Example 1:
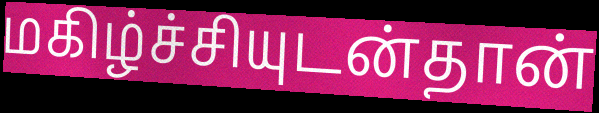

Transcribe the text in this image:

மகிழ்ச்சியுடன்தான்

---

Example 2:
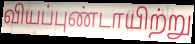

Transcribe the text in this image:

வியப்புண்டாயிற்று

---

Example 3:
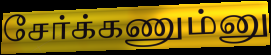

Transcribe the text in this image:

சேர்க்கணும்னு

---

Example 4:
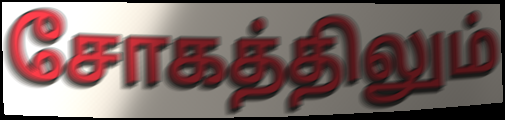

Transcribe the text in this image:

சோகத்திலும்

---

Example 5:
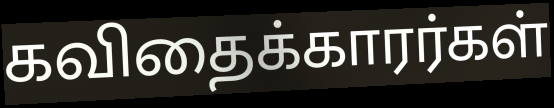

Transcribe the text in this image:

கவிதைக்காரர்கள்